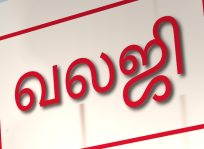
வலஜி